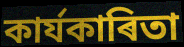
কাৰ্যকাৰিতা